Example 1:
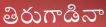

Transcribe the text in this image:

తిరుగాడినా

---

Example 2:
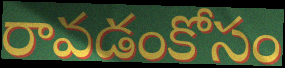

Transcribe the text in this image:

రావడంకోసం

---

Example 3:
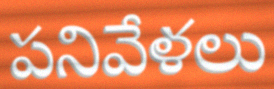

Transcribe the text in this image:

పనివేళలు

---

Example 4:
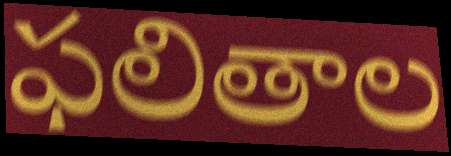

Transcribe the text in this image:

ఫలితాల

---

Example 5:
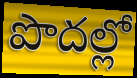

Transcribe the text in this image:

పొదల్లో